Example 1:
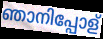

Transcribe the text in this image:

ഞാനിപ്പോള്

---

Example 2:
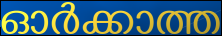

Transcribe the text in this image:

ഓർക്കാത്ത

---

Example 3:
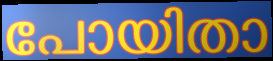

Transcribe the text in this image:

പോയിതാ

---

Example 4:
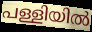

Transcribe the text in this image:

പള്ളിയിൽ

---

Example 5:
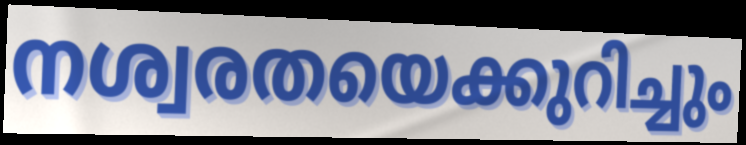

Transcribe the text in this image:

നശ്വരതയെക്കുറിച്ചും